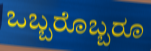
ಒಬ್ಬರೊಬ್ಬರೂ